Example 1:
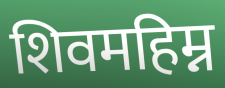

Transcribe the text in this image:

शिवमहिम्न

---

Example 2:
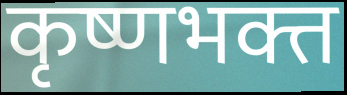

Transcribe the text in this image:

कृष्णभक्त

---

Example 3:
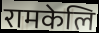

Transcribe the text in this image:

रामकेलि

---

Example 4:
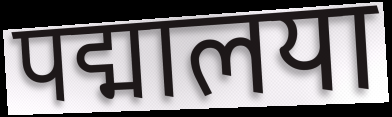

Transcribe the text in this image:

पद्मालया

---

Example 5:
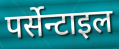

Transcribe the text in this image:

पर्सेन्टाइल